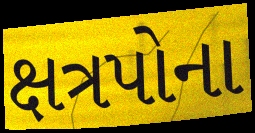
ક્ષત્રપોના